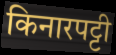
किनारपट्टी